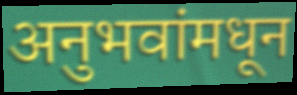
अनुभवांमधून